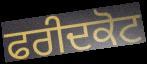
ਫਰੀਦਕੋਟ